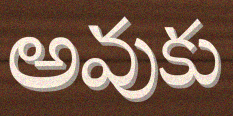
అవుకు